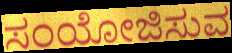
ಸಂಯೋಜಿಸುವ